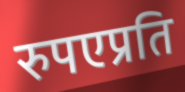
रुपएप्रति